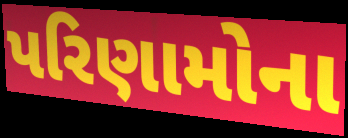
પરિણામોના